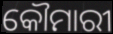
କୌମାରୀ